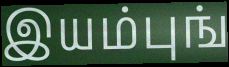
இயம்புங்